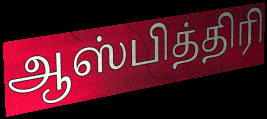
ஆஸ்பித்திரி